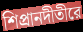
শিপ্রানদীতীরে